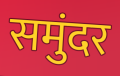
समुंदर